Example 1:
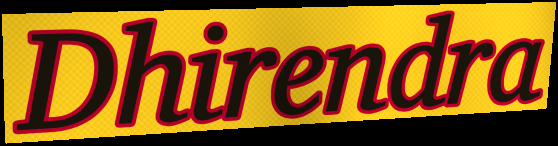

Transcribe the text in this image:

Dhirendra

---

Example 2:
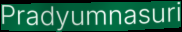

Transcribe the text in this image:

Pradyumnasuri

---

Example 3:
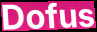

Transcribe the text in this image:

Dofus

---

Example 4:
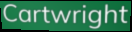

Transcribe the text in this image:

Cartwright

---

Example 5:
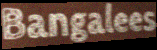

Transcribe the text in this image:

Bangalees